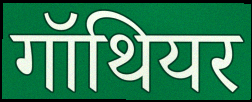
गॉथियर